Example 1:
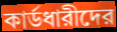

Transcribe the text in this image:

কার্ডধারীদের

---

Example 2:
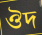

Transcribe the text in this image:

ঔদ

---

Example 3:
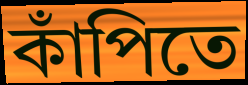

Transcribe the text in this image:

কাঁপিতে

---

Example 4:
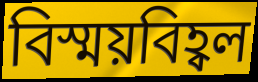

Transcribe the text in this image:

বিস্ময়বিহ্বল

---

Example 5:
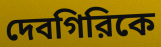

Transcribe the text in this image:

দেবগিরিকে